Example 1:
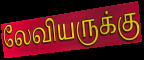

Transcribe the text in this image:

லேவியருக்கு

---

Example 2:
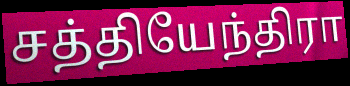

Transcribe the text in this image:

சத்தியேந்திரா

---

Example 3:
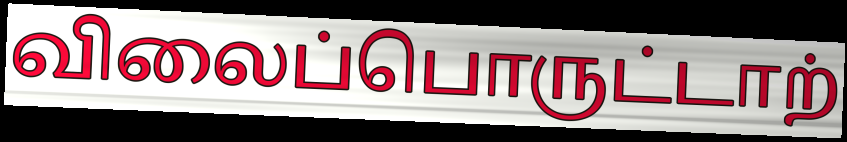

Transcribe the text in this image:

விலைப்பொருட்டாற்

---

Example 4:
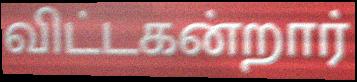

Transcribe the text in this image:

விட்டகன்றார்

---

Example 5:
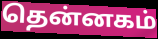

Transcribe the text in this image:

தென்னகம்